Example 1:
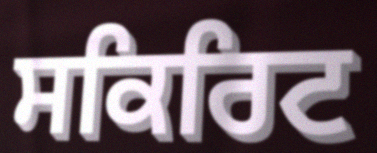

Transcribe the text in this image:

ਸਕਿਰਿਟ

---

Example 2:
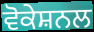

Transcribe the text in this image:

ਵੋਕੇਸ਼ਨਲ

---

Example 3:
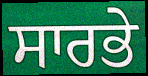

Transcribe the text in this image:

ਸਾਰਭੇ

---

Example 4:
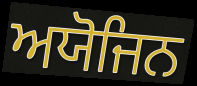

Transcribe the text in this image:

ਅਯੋਜਿਨ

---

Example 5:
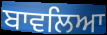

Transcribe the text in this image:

ਬਾਵਲਿਆ